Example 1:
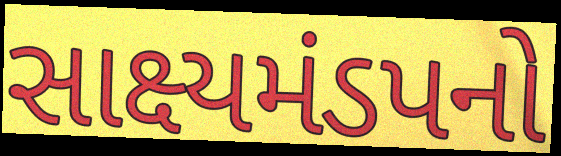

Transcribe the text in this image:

સાક્ષ્યમંડપનો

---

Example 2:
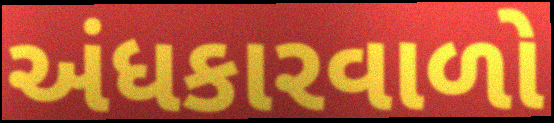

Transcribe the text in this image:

અંધકારવાળો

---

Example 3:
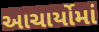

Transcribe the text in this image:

આચાર્યોમાં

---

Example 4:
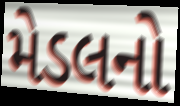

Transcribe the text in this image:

મેડલનો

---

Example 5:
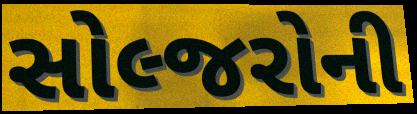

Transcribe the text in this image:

સોલ્જરોની